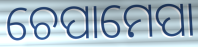
ଚେପାମେପା